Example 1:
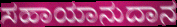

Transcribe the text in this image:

ಸಹಾಯಾನುದಾನ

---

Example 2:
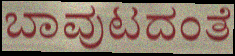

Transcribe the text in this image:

ಬಾವುಟದಂತೆ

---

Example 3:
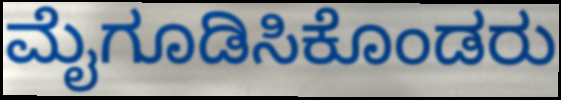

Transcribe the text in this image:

ಮೈಗೂಡಿಸಿಕೊಂಡರು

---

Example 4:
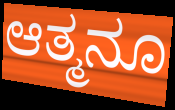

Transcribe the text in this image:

ಆತ್ಮನೂ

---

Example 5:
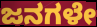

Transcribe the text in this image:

ಜನಗಳೇ